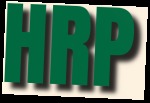
HRP